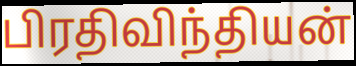
பிரதிவிந்தியன்